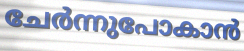
ചേർന്നുപോകാൻ